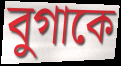
বুগাকে